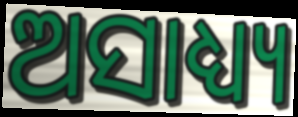
ଅସାଧ୍ୟ୍ୟ